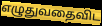
எழுதுவதைவிட